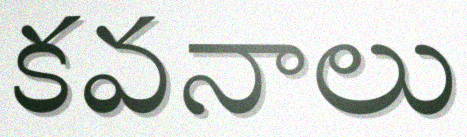
కవనాలు